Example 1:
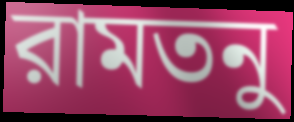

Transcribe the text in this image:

রামতনু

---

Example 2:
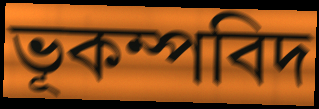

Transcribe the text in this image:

ভূকম্পবিদ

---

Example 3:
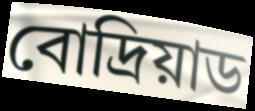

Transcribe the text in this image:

বোদ্রিয়াড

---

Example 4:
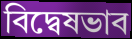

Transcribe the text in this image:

বিদ্বেষভাব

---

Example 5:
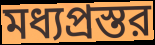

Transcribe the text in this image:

মধ্যপ্রস্তর